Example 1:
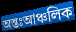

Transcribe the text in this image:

অন্তঃআঞ্চলিক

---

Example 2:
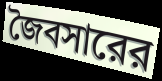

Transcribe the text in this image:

জৈবসারের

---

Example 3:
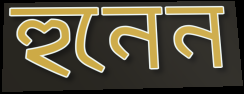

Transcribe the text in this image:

হুনেন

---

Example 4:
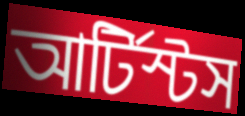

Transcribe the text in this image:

আর্টিস্টস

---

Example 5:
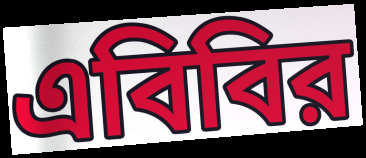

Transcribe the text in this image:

এবিবির